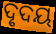
ଦୃଦୟ